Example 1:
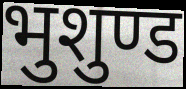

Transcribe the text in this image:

भुशुण्ड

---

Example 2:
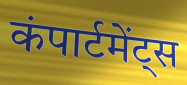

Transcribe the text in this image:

कंपार्टमेंट्स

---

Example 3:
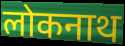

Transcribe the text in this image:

लोकनाथ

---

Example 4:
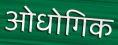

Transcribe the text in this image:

ओधोगिक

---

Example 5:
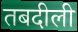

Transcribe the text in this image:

तबदीली